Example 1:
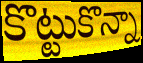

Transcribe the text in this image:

కొట్టుకొన్నా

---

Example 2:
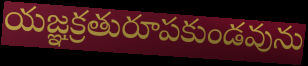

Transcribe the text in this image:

యజ్ఞక్రతురూపకుండవును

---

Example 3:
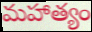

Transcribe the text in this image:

మహాత్యం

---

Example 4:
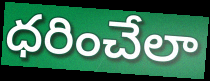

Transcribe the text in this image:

ధరించేలా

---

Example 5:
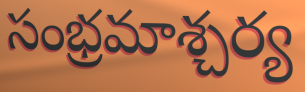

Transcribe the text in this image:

సంభ్రమాశ్చర్య